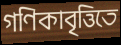
গণিকাবৃত্তিতে